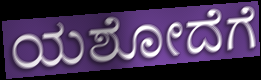
ಯಶೋದೆಗೆ